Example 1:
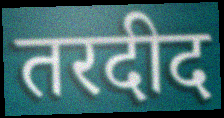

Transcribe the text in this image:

तरदीद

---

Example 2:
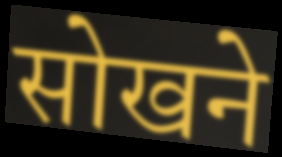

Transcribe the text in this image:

सोखने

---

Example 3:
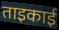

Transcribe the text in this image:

ताइकाई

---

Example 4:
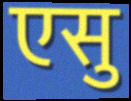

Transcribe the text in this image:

एसु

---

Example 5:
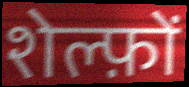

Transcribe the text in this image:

शेल्फ़ों